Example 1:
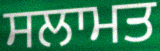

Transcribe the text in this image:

ਸਲਾਮਤ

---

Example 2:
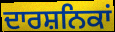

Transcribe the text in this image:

ਦਾਰਸ਼ਨਿਕਾਂ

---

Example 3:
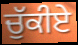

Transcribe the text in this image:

ਚੁੱਕੀਏ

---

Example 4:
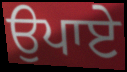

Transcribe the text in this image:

ਉਪਾਏ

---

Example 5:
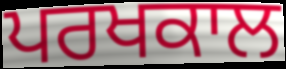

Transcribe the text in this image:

ਪਰਖਕਾਲ